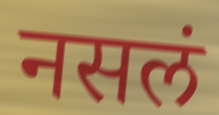
नसलं